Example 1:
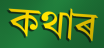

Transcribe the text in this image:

কথাৰ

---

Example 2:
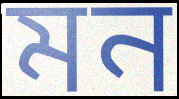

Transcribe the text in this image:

মন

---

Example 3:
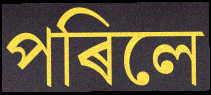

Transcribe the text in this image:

পৰিলে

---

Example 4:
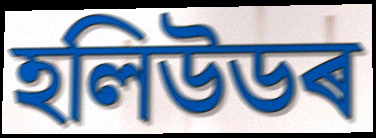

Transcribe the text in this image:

হলিউডৰ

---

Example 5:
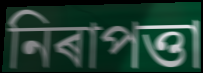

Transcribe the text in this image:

নিৰাপত্তা